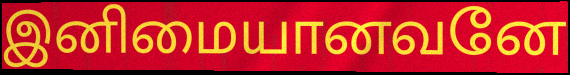
இனிமையானவனே